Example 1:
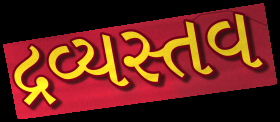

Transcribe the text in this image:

દ્રવ્યસ્તવ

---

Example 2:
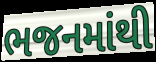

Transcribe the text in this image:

ભજનમાંથી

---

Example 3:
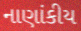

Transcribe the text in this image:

નાણાંકીય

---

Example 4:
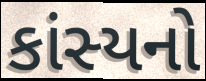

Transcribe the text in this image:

કાંસ્યનો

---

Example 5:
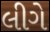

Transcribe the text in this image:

લીગે